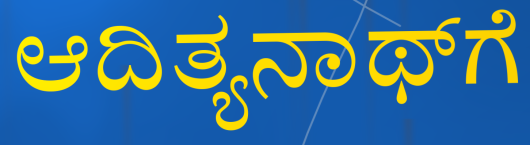
ಆದಿತ್ಯನಾಥ್‌ಗೆ